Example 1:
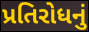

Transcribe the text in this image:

પ્રતિરોધનું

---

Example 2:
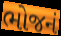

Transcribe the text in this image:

ભોજનં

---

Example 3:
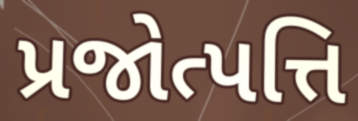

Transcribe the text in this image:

પ્રજોત્પત્તિ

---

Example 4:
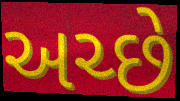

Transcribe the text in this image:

અચ્છે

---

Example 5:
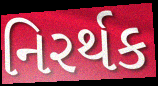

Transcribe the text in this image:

નિરર્થક